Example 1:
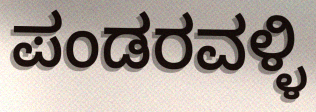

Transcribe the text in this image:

ಪಂಡರವಳ್ಳಿ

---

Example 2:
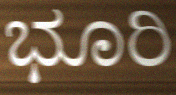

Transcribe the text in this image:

ಭೂರಿ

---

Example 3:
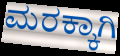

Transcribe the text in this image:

ಮರಕ್ಕಾಗಿ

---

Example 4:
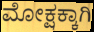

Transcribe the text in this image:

ಮೋಕ್ಷಕ್ಕಾಗಿ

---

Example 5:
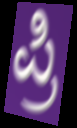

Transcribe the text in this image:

ಪ್ರಿ